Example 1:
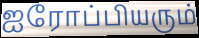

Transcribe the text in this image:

ஐரோப்பியரும்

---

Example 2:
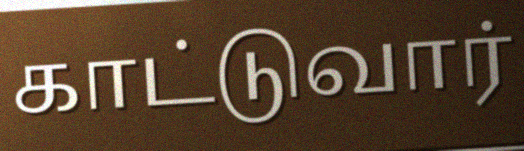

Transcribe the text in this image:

காட்டுவார்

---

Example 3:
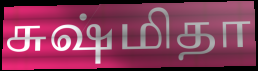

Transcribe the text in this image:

சுஷ்மிதா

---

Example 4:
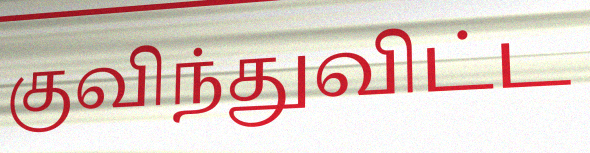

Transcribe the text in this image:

குவிந்துவிட்ட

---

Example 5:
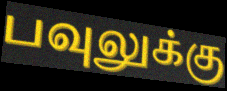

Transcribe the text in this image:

பவுலுக்கு